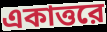
একাত্তরে